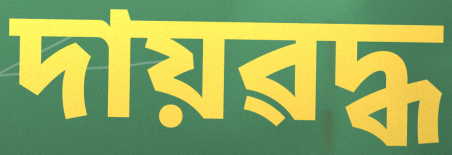
দায়ৱদ্ধ